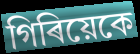
গিৰিয়েকে